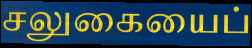
சலுகையைப்